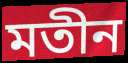
মতীন